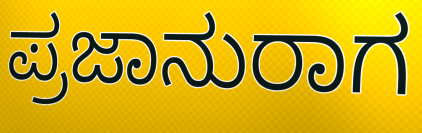
ಪ್ರಜಾನುರಾಗ